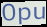
Opu